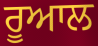
ਰੂਆਲ